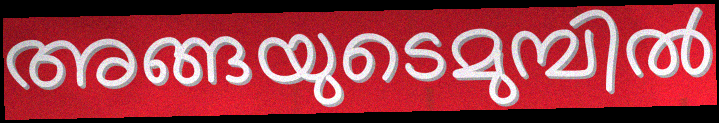
അങ്ങയുടെമുമ്പിൽ